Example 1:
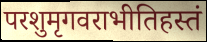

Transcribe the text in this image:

परशुमृगवराभीतिहस्तं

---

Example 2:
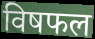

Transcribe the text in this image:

विषफल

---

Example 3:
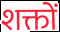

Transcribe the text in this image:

शक्तों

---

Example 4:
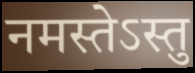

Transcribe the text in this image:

नमस्तेऽस्तु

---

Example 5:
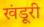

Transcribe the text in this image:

खंडूरी